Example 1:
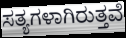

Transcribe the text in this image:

ಸತ್ಯಗಳಾಗಿರುತ್ತವೆ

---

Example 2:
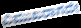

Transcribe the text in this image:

ವಿಮುಖರಾಗದೇ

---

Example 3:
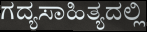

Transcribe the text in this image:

ಗದ್ಯಸಾಹಿತ್ಯದಲ್ಲಿ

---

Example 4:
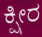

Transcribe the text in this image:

ಕ್ಷೀರ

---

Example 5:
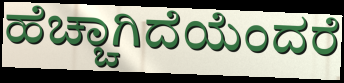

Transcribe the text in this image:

ಹೆಚ್ಚಾಗಿದೆಯೆಂದರೆ